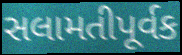
સલામતીપૂર્વક